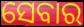
ସେବାର